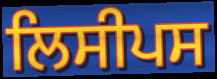
ਲਿਸੀਪਸ